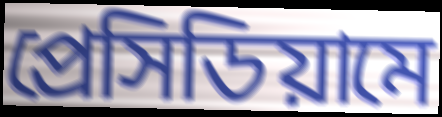
প্রেসিডিয়ামে